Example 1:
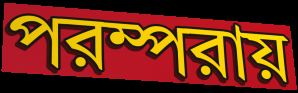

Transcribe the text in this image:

পরম্পরায়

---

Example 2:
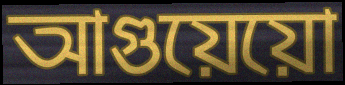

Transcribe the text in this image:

আগুয়েয়ো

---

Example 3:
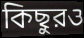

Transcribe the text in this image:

কিছুরও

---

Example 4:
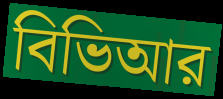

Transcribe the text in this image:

বিভিআর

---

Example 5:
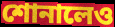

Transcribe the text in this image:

শোনালেও